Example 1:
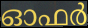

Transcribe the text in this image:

ഓഫർ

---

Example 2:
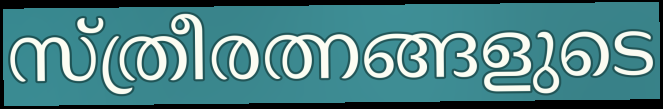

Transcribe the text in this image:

സ്ത്രീരത്നങ്ങളുടെ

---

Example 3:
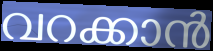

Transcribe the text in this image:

വറക്കാൻ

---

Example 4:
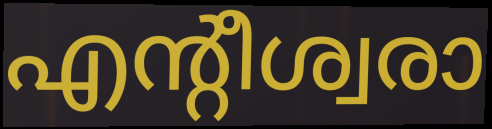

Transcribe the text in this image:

എന്റീശ്വരാ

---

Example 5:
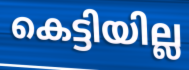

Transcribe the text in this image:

കെട്ടിയില്ല